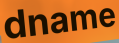
dname